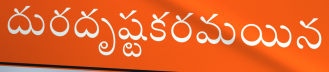
దురదృష్టకరమయిన